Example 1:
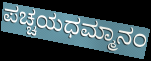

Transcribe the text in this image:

ಪಚ್ಚಯಧಮ್ಮಾನಂ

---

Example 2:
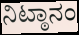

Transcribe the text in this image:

ನಿಟ್ಠಾನಂ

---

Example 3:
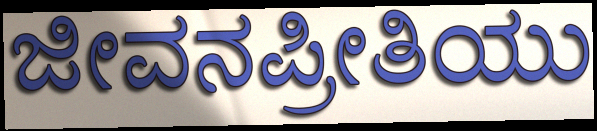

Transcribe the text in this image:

ಜೀವನಪ್ರೀತಿಯು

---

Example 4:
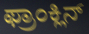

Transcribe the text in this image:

ಫ್ರಾಂಕ್ಲಿನ್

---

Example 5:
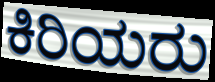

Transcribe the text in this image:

ಕಿರಿಯರು